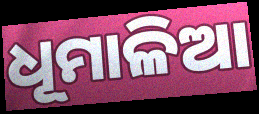
ଧୂମାଳିଆ